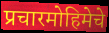
प्रचारमोहिमेचे